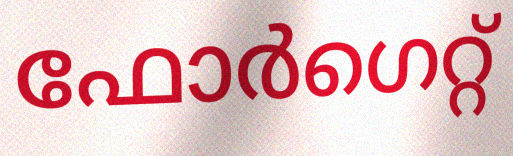
ഫോർഗെറ്റ്